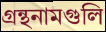
গ্রন্থনামগুলি